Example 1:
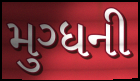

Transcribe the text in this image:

મુગ્ધની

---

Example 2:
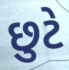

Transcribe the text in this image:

છુટે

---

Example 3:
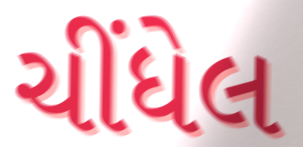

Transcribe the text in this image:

ચીંધેલ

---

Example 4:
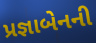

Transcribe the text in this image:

પ્રજ્ઞાબેનની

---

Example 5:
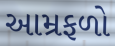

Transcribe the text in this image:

આમ્રફળો